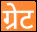
ग्रेट